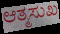
ಆತ್ಮಸುಖ